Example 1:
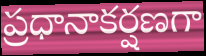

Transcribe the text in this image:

ప్రధానాకర్షణగా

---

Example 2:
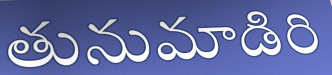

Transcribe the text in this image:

తునుమాడిరి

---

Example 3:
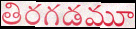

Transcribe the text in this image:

తిరగడమూ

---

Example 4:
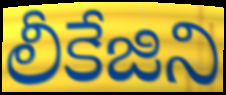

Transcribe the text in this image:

లీకేజిని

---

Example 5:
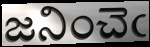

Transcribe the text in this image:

జనించెఁ